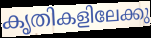
കൃതികളിലേക്കു